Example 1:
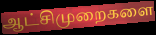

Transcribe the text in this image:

ஆட்சிமுறைகளை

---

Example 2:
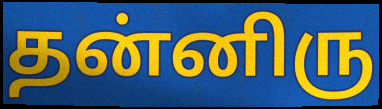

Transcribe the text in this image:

தன்னிரு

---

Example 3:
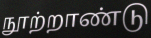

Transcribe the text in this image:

நூற்றாண்டு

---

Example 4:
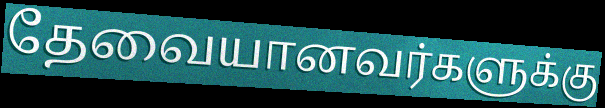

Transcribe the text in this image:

தேவையானவர்களுக்கு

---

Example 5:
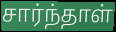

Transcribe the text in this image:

சார்ந்தாள்